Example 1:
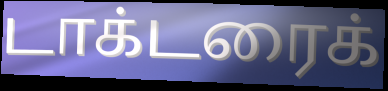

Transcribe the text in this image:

டாக்டரைக்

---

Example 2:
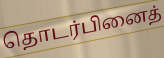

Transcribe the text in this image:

தொடர்பினைத்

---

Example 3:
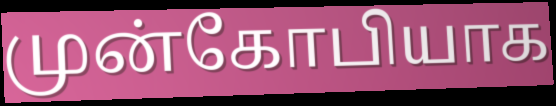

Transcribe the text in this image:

முன்கோபியாக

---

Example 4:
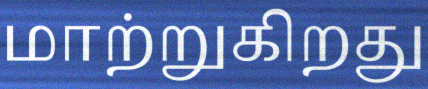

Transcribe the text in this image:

மாற்றுகிறது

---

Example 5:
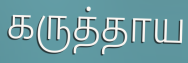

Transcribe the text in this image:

கருத்தாய